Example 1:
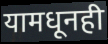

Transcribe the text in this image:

यामधूनही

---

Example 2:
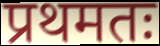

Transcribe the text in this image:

प्रथमतः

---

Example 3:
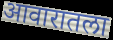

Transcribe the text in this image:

आवारातला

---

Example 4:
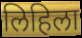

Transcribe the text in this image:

लिहिला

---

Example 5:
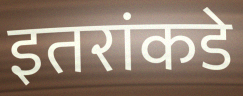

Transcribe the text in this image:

इतरांकडे